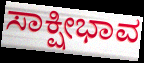
ಸಾಕ್ಷೀಭಾವ